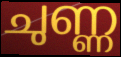
ചുണ്ണ